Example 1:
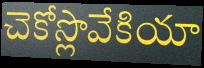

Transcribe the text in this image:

చెకోస్లొవేకియా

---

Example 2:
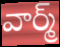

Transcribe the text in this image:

వార్మ్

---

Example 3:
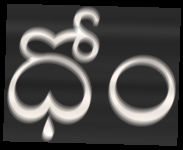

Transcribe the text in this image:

ధోం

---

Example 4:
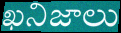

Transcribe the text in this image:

ఖనిజాలు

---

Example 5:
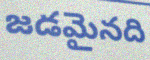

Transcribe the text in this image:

జడమైనది